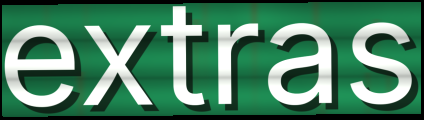
extras